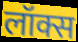
लॉक्स